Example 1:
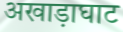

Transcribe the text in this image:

अखाड़ाघाट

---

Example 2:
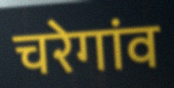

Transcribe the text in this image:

चरेगांव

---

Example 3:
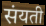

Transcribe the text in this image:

संयती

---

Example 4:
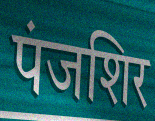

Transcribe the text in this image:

पंजशिर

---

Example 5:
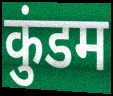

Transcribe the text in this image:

कुंडम